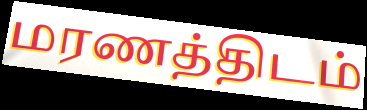
மரணத்திடம்